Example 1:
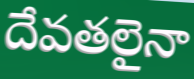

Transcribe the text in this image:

దేవతలైనా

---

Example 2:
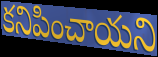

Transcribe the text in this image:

కనిపించాయని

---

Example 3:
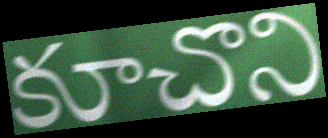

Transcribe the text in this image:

కూచొని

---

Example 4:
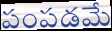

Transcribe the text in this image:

పంపడమే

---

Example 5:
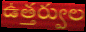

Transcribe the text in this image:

ఉత్తర్వుల